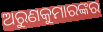
ଅରୁଣକୁମାରଙ୍କର